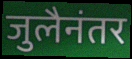
जुलैनंतर